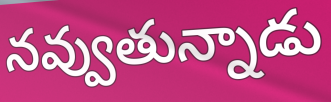
నవ్వుతున్నాడు